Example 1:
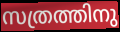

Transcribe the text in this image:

സത്രത്തിനു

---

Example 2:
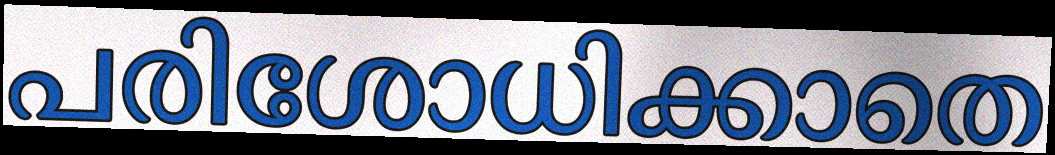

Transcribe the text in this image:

പരിശോധിക്കാതെ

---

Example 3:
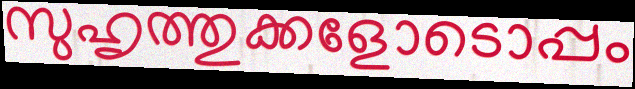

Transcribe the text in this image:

സുഹൃത്തുക്കളോടൊപ്പം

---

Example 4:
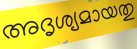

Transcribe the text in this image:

അദൃശ്യമായതു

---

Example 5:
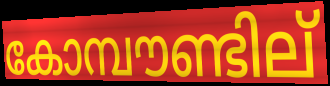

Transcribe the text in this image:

കോമ്പൗണ്ടില്